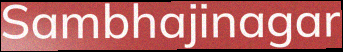
Sambhajinagar